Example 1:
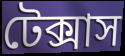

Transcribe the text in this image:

টেক্সাস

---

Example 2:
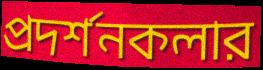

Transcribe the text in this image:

প্রদর্শনকলার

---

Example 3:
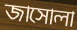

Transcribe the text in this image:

জাসোলা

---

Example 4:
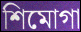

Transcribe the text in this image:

শিমোগা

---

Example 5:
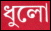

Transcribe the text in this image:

ধুলো